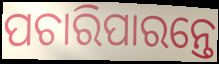
ପଚାରିପାରନ୍ତେ